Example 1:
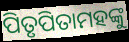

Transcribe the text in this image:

ପିତୃପିତାମହଙ୍କୁ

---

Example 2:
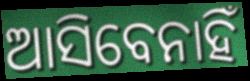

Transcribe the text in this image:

ଆସିବେନାହିଁ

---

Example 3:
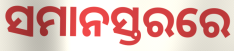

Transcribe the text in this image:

ସମାନସ୍ତରରେ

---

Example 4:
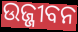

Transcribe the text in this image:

ଉଜ୍ଜୀବନ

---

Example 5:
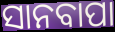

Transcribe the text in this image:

ସାନବାପା